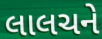
લાલચને